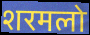
शरमलो